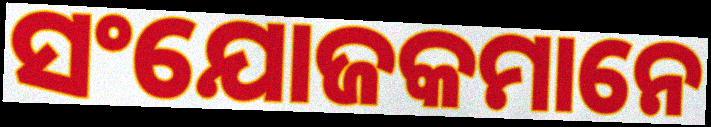
ସଂଯୋଜକମାନେ